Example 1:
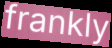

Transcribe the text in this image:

frankly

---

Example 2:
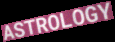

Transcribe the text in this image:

ASTROLOGY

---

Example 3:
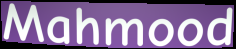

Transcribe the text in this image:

Mahmood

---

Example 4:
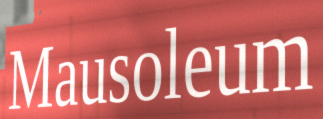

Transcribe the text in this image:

Mausoleum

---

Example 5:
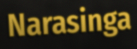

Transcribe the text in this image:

Narasinga